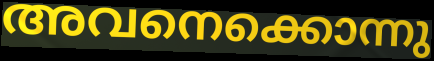
അവനെക്കൊന്നു